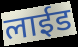
लाईड